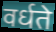
वर्धते